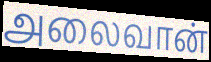
அலைவான்